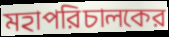
মহাপরিচালকের